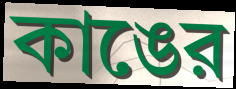
কাঙের